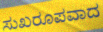
ಸುಖರೂಪವಾದ